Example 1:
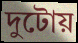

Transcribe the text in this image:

দুটোয়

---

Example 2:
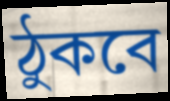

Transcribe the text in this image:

ঠুকবে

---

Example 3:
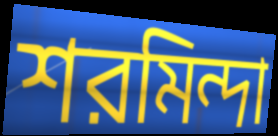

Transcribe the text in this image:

শরমিন্দা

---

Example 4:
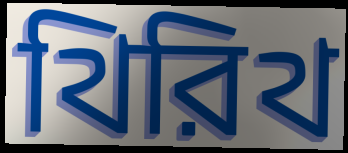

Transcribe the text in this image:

থিরিথ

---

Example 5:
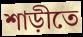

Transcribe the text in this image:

শাড়ীতে